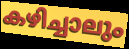
കഴിച്ചാലും